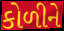
કોળીને